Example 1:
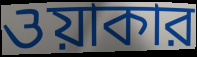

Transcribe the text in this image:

ওয়াকার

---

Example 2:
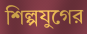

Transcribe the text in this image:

শিল্পযুগের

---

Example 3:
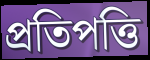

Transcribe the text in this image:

প্রতিপত্তি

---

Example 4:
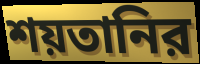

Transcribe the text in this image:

শয়তানির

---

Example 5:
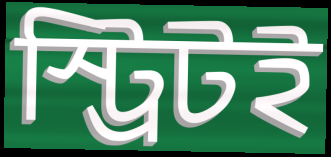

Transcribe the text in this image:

স্ট্রিটই